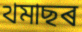
থমাছৰ